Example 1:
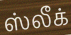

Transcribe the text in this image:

ஸ்லீக்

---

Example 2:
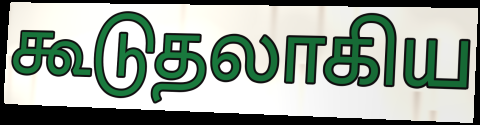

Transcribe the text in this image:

கூடுதலாகிய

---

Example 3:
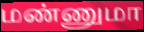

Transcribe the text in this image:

மண்ணுமா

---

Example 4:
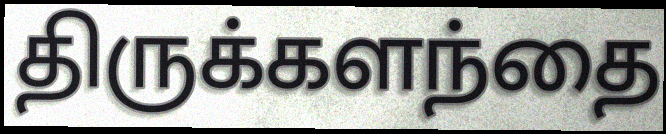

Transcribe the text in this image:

திருக்களந்தை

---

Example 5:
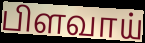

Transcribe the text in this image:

பிளவாய்